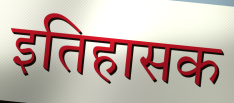
इतिहासक